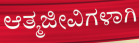
ಆತ್ಮಜೀವಿಗಳಾಗಿ